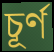
চূর্ণ